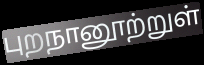
புறநானூற்றுள்